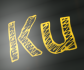
Ku